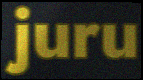
juru